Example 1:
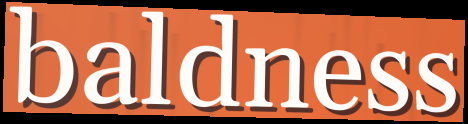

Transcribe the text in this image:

baldness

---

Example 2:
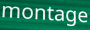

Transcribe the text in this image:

montage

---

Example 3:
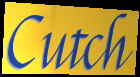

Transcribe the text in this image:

Cutch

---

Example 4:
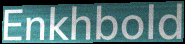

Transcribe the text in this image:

Enkhbold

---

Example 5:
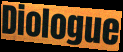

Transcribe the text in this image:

Diologue